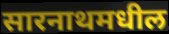
सारनाथमधील